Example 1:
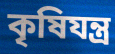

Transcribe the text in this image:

কৃষিযন্ত্র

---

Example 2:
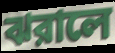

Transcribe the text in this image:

ঝরালে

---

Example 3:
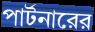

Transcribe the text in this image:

পার্টনারের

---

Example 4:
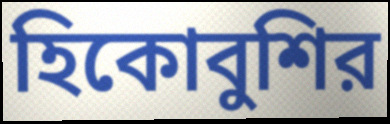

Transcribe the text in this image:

হিকোবুশির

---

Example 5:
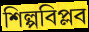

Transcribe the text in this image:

শিল্পবিপ্লব